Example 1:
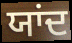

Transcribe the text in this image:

ਯਾਂਦ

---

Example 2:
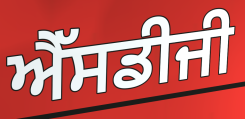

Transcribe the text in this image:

ਐੱਸਡੀਜੀ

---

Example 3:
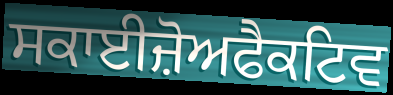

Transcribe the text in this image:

ਸਕਾਈਜ਼ੋਅਫੈਕਟਿਵ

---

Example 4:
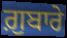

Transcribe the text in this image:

ਗ਼ੁਬਾਰੇ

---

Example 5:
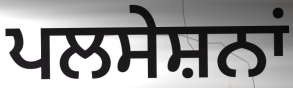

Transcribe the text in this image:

ਪਲਸੇਸ਼ਨਾਂ